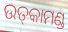
ଉତ୍‌କାମଣ୍ଡ